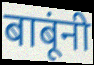
बाबूंनी